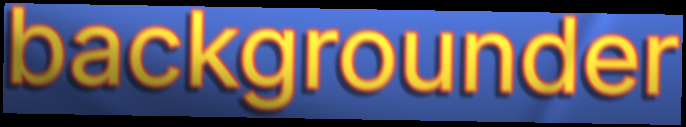
backgrounder